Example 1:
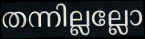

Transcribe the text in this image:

തന്നില്ലല്ലോ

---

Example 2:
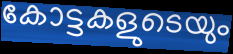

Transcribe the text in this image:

കോട്ടകളുടെയും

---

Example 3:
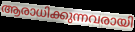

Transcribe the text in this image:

ആരാധിക്കുന്നവരായി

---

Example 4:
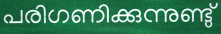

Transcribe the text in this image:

പരിഗണിക്കുന്നുണ്ടു്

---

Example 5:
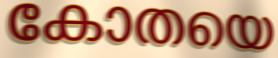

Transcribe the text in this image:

കോതയെ